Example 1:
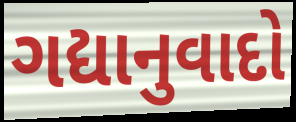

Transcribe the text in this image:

ગદ્યાનુવાદો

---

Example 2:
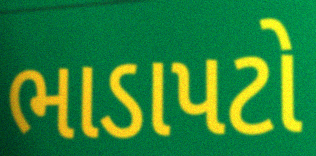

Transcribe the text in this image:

ભાડાપટો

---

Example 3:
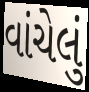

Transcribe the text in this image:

વાંચેલું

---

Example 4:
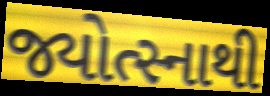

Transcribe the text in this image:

જ્યોત્સ્નાથી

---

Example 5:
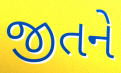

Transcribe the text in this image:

જીતને